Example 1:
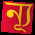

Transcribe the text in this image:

ন্যূ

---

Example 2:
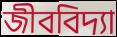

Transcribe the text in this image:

জীববিদ্যা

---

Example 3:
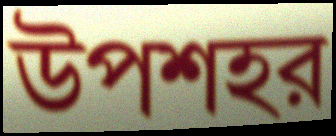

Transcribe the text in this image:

উপশহর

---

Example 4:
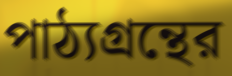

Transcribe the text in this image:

পাঠ্যগ্রন্থের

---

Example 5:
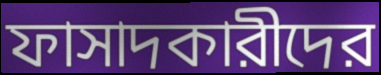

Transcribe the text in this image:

ফাসাদকারীদের